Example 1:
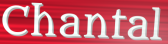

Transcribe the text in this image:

Chantal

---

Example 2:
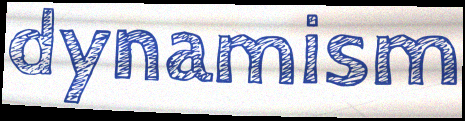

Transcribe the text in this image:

dynamism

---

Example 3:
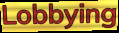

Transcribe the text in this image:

Lobbying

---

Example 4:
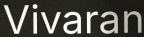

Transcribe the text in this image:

Vivaran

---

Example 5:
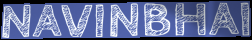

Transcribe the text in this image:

NAVINBHAI